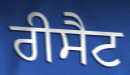
ਰੀਸੈਟ